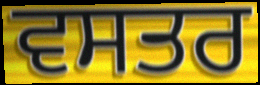
ਵਸਤਰ